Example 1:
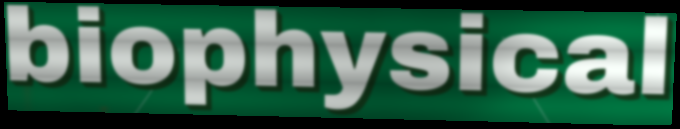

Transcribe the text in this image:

biophysical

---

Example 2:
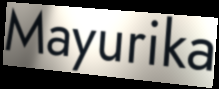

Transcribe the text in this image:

Mayurika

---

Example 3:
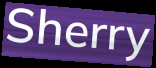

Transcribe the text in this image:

Sherry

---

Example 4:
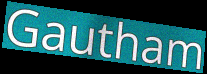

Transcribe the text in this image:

Gautham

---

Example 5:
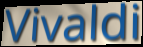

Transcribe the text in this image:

Vivaldi